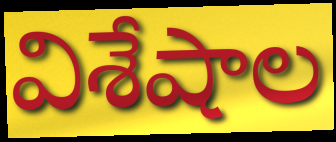
విశేషాల